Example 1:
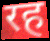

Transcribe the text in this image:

रह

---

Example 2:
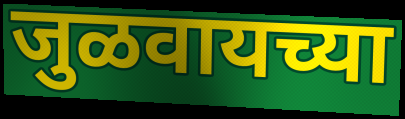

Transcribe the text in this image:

जुळवायच्या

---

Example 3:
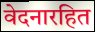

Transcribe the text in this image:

वेदनारहित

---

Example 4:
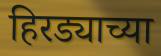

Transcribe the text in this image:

हिरड्याच्या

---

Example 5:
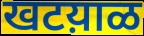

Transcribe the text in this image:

खटय़ाळ